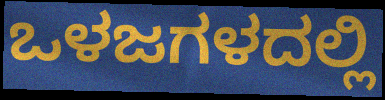
ಒಳಜಗಳದಲ್ಲಿ